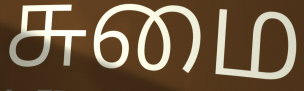
சுமை